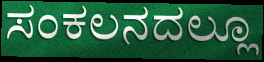
ಸಂಕಲನದಲ್ಲೂ